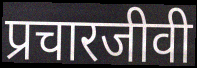
प्रचारजीवी